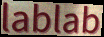
lablab